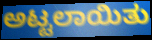
ಅಟ್ಟಲಾಯಿತು